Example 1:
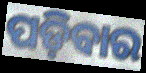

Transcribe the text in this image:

ପଡ଼ିବାର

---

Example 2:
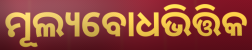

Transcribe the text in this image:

ମୂଲ୍ୟବୋଧଭିତ୍ତିକ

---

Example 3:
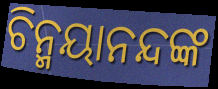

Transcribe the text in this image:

ଚିନ୍ମୟାନନ୍ଦଙ୍କ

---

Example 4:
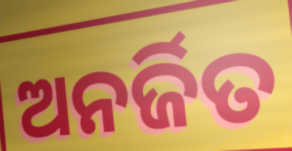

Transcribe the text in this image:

ଅନର୍ଜିତ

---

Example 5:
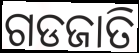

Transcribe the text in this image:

ଗଡଜାତି